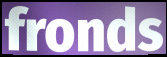
fronds